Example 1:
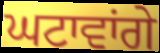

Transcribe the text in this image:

ਘਟਾਵਾਂਗੇ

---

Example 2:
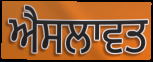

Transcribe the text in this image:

ਐਸਲਾਵਤ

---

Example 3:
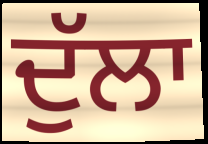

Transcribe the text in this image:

ਦੁੱਲਾ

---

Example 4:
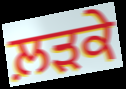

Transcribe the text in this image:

ਲ਼ਡ਼ਕੇ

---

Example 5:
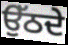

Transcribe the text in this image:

ਉੱਠਦੇ